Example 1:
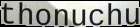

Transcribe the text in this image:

thonuchu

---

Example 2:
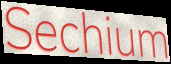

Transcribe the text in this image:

Sechium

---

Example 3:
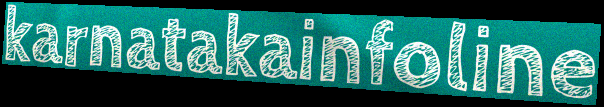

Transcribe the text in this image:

karnatakainfoline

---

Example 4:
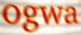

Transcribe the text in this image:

ogwa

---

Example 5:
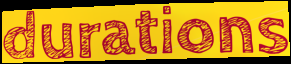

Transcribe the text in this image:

durations